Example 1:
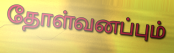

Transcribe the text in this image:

தோள்வனப்பும்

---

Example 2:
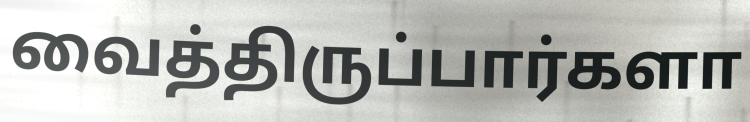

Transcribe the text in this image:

வைத்திருப்பார்களா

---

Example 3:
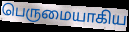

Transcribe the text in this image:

பெருமையாகிய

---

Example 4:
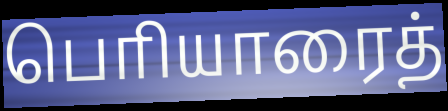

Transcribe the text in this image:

பெரியாரைத்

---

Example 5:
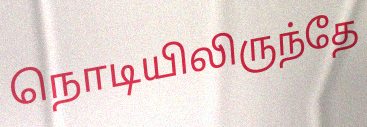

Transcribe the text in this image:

நொடியிலிருந்தே